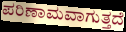
ಪರಿಣಾಮವಾಗುತ್ತದೆ